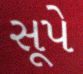
સૂપે